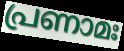
പ്രണാമഃ